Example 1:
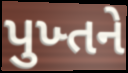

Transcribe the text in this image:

પુખ્તને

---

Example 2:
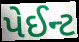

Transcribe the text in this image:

પેઈન્ટ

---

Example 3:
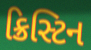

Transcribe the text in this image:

ક્રિસ્ટિન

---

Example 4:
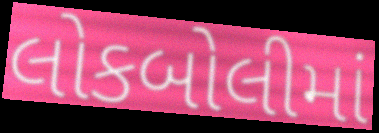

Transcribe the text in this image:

લોકબોલીમાં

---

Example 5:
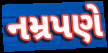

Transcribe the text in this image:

નમ્રપણે